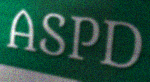
ASPD